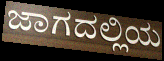
ಜಾಗದಲ್ಲಿಯ